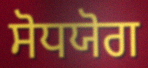
ਸੋਧਯੋਗ